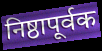
निष्ठापूर्वक